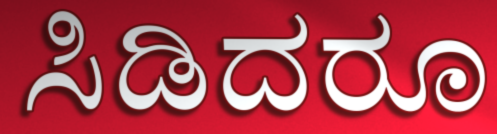
ಸಿಡಿದರೂ